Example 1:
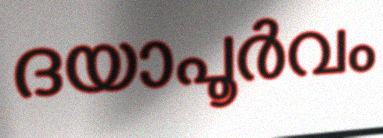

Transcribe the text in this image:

ദയാപൂർവം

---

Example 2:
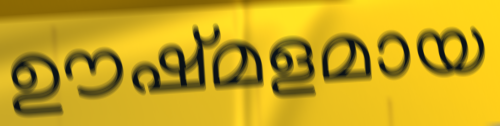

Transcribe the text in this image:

ഊഷ്‌മളമായ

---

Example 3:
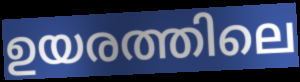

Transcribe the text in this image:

ഉയരത്തിലെ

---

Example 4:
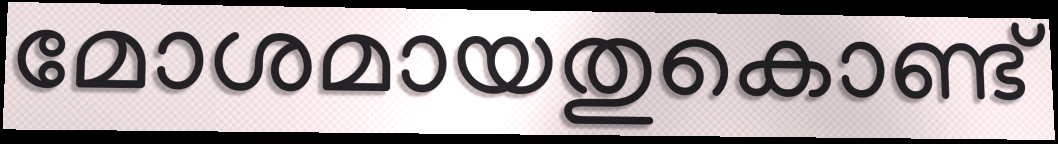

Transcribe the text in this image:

മോശമായതുകൊണ്ട്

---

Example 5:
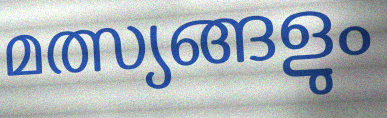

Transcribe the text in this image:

മത്സ്യങ്ങളും